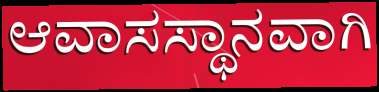
ಆವಾಸಸ್ಥಾನವಾಗಿ